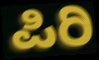
ಪಿರಿ